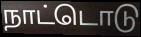
நாட்டொடு